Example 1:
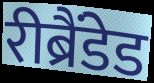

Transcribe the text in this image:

रीब्रैंडेड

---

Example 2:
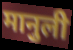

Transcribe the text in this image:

मानुली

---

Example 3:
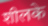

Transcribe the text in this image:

शीलके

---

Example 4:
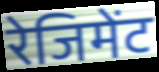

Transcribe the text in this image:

रेजिमेंट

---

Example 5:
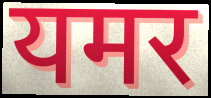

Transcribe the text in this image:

यमर